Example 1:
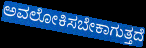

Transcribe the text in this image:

ಅವಲೋಕಿಸಬೇಕಾಗುತ್ತದೆ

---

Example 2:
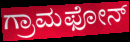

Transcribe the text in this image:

ಗ್ರಾಮಫೋನ್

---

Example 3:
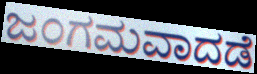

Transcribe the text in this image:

ಜಂಗಮವಾದಡೆ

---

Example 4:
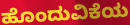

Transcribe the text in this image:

ಹೊಂದುವಿಕೆಯ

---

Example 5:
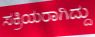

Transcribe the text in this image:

ಸಕ್ರಿಯರಾಗಿದ್ದು